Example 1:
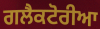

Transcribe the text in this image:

ਗਲੈਕਟੋਰੀਆ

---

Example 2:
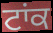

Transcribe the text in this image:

ਟਾਂਕ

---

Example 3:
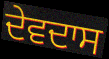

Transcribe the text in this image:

ਦੇਵਦਾਸ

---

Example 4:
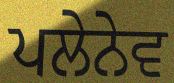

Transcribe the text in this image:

ਪਲੇਨੇਵ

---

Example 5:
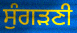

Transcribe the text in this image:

ਸੁੰਗੜਣੀ